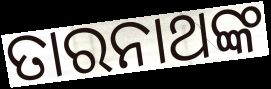
ତାରନାଥଙ୍କ